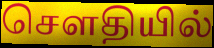
செளதியில்